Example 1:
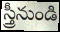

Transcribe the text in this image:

స్త్రీనుండి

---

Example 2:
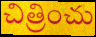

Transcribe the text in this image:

చిత్రించు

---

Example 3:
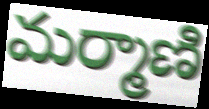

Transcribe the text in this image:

మర్మాణి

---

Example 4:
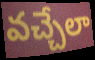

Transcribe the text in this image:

వచ్చేలా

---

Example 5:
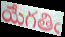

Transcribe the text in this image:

యేగతిఁ